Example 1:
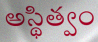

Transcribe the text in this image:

అస్థిత్వం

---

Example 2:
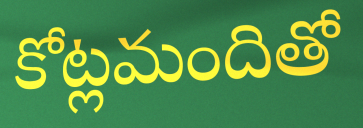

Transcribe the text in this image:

కోట్లమందితో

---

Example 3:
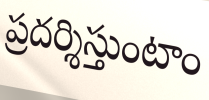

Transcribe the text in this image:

ప్రదర్శిస్తుంటాం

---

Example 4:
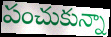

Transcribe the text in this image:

పంచుకున్నా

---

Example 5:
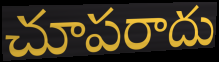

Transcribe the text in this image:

చూపరాదు